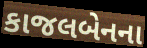
કાજલબેનના